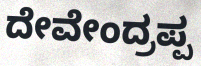
ದೇವೇಂದ್ರಪ್ಪ